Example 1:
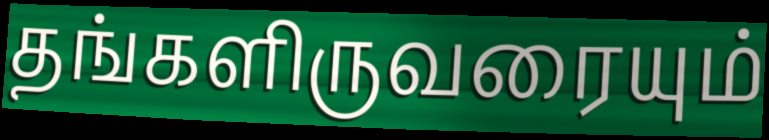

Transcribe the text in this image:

தங்களிருவரையும்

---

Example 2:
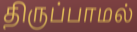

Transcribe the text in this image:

திருப்பாமல்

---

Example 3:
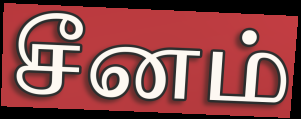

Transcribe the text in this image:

சீனம்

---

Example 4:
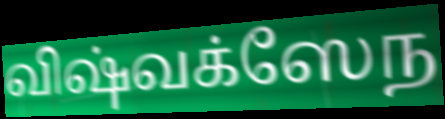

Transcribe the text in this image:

விஷ்வக்ஸேந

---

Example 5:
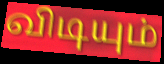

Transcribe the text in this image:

விடியும்